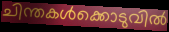
ചിന്തകൾക്കൊടുവിൽ